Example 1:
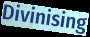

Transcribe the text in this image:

Divinising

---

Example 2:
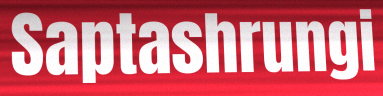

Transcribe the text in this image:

Saptashrungi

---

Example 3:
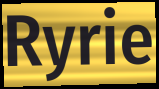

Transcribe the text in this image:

Ryrie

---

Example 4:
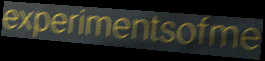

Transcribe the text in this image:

experimentsofme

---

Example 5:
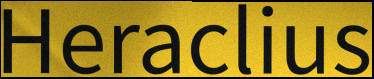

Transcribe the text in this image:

Heraclius